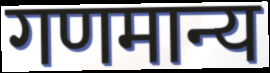
गणमान्‍य